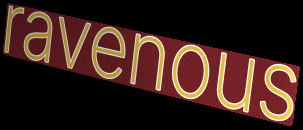
ravenous